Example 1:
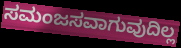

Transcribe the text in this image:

ಸಮಂಜಸವಾಗುವುದಿಲ್ಲ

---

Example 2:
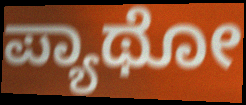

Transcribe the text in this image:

ಪ್ಯಾಥೋ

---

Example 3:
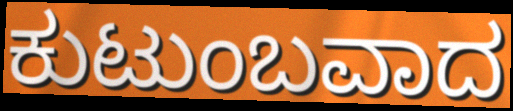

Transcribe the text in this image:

ಕುಟುಂಬವಾದ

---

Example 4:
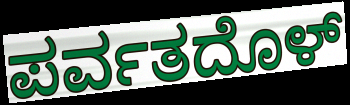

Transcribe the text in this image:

ಪರ್ವತದೊಳ್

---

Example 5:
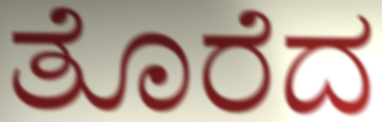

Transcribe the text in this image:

ತೊರೆದ